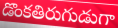
డొంకతిరుగుడుగా